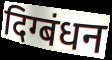
दिग्बंधन